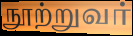
நூற்றுவர்